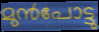
മുൻപോട്ടു